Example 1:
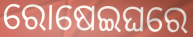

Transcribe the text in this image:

ରୋଷେଇଘରେ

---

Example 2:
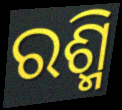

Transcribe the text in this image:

ରଶ୍ମି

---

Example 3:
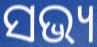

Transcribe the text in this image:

ସଭ୍ୟ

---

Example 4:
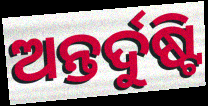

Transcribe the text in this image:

ଅନ୍ତର୍ଦୁଷ୍ଟି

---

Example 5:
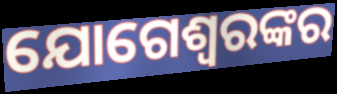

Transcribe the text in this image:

ଯୋଗେଶ୍ଵରଙ୍କର